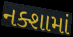
નક્શામાં